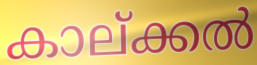
കാല്ക്കൽ